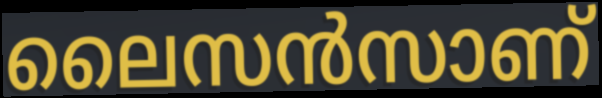
ലൈസൻസാണ്